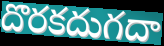
దొరకదుగదా